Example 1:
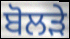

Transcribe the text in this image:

ਬੋਲੜੇ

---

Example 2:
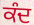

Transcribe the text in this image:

ਕੰਦ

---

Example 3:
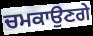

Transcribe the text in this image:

ਚਮਕਾਉਣਗੇ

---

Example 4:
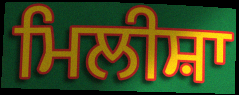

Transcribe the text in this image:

ਮਿਲੀਸ਼ਾ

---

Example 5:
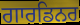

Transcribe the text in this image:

ਗਾਰਡਿਨਰ